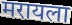
मरायला